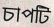
চাপটি